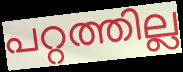
പറ്റത്തില്ല